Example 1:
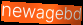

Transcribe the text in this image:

newagebd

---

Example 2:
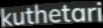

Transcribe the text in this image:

kuthetari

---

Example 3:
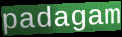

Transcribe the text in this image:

padagam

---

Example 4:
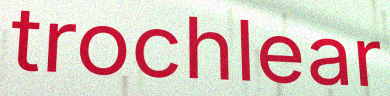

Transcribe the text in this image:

trochlear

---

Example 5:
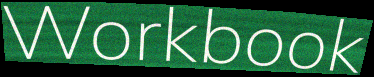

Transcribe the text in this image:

Workbook